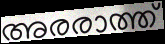
അരരാത്ത്